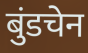
बुंडचेन